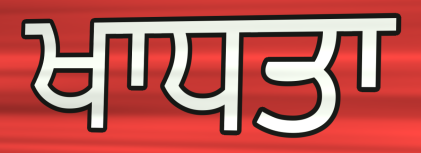
ਖਾਧਤਾ